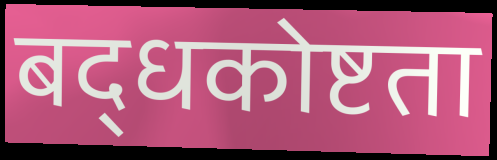
बद्धकोष्टता